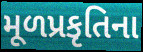
મૂળપ્રકૃતિના